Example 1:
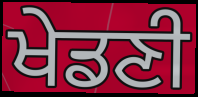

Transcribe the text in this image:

ਖੇਡਣੀ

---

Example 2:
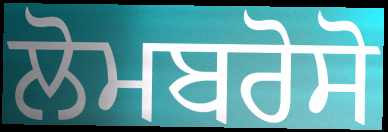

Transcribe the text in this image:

ਲੋਮਬਰੋਸੋ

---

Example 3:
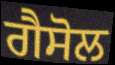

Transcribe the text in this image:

ਗੈਸੋਲ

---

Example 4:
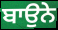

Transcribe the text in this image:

ਬਾਉਨੇ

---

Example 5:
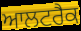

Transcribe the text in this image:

ਆਲਟਰੈਕ